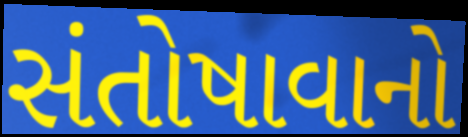
સંતોષાવાનો